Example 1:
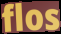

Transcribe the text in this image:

flos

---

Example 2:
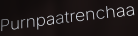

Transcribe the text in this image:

Purnpaatrenchaa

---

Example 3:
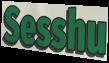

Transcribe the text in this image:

Sesshu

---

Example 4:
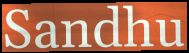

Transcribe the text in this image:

Sandhu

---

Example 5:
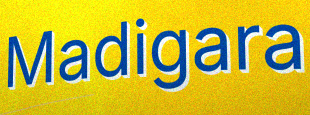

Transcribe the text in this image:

Madigara